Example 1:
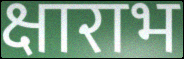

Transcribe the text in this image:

क्षाराभ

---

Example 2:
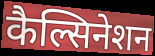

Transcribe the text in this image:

कैल्सिनेशन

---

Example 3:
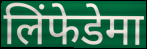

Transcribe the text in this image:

लिंफेडेमा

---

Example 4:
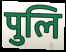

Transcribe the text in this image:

पुलि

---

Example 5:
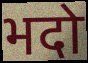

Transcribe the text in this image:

भदो